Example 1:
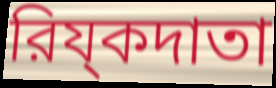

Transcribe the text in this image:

রিয্কদাতা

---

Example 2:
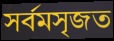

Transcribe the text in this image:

সর্বমসৃজত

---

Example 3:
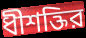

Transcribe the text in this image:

ধীশক্তির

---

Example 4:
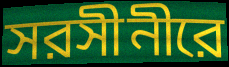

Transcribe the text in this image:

সরসীনীরে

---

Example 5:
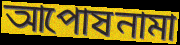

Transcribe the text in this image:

আপোষনামা